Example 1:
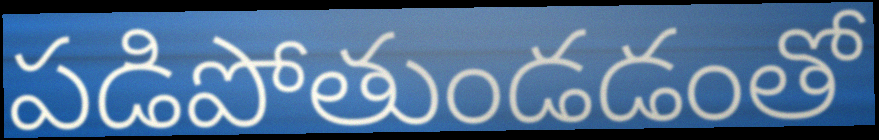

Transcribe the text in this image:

పడిపోతుండడంతో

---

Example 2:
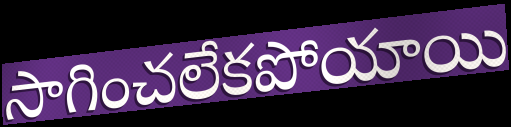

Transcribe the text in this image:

సాగించలేకపోయాయి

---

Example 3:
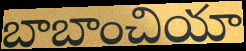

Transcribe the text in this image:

బాబాంచియా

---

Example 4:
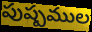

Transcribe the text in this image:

పుష్పముల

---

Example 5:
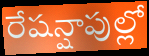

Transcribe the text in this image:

రేషన్షాపుల్లో